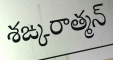
శఙ్కరాత్మన్